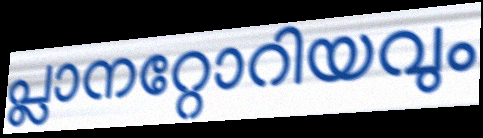
പ്ലാനറ്റോറിയവും